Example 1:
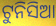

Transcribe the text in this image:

ଟୁନିସିଆ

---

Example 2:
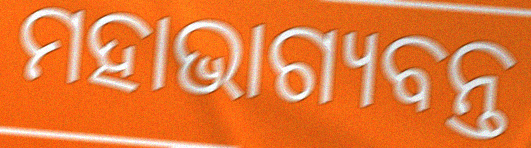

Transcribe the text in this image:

ମହାଭାଗ୍ୟବନ୍ତ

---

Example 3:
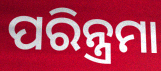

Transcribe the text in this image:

ପରିନ୍ତ୍ରମା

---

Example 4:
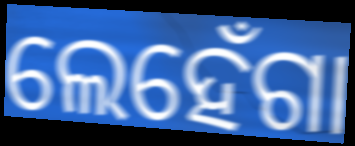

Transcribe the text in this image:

ଲେହେଁଗା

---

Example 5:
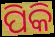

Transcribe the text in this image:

ପିକି